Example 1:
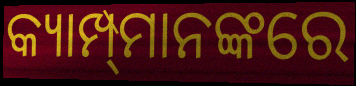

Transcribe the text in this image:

କ୍ୟାମ୍ପ୍‍ମାନଙ୍କରେ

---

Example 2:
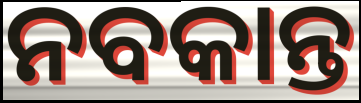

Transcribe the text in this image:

ନବକାନ୍ତ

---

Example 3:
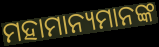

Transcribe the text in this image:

ମହାମାନ୍ୟମାନଙ୍କ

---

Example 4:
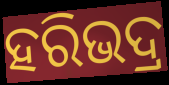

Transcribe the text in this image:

ହରିଭଦ୍ର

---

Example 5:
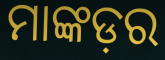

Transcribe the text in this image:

ମାଙ୍କଡ଼ର